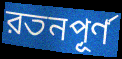
রতনপূর্ণ